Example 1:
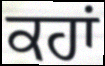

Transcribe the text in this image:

ਕਹਾਂ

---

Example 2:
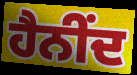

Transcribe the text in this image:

ਹੈਨੀਂਦ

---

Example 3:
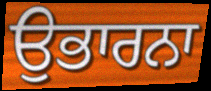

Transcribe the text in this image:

ਉਭਾਰਨਾ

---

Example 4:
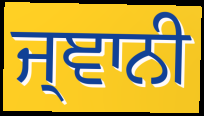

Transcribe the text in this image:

ਜ੍ਞਾਨੀ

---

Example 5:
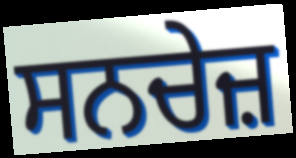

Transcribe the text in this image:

ਸਨਚੇਜ਼